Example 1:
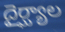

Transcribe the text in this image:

దైర్ఘ్యాల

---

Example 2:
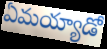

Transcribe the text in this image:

ఏమయ్యాడో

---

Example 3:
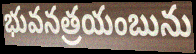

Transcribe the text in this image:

భువనత్రయంబును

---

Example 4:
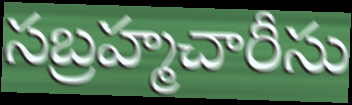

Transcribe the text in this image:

సబ్రహ్మచారీసు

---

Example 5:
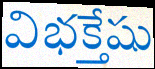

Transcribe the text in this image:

విభక్తేషు